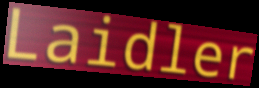
Laidler